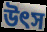
উৎস